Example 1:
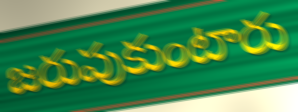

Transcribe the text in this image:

జరుపుకుంటారు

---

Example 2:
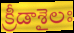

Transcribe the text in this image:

క్రీడాశైలః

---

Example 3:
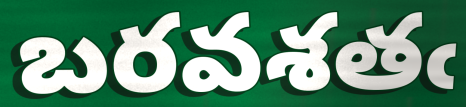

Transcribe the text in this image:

బరవశతఁ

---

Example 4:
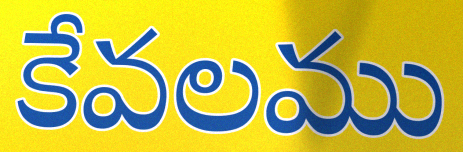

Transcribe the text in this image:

కేవలము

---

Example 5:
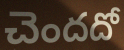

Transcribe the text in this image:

చెందదో